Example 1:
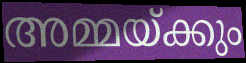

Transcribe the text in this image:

അമ്മയ്ക്കും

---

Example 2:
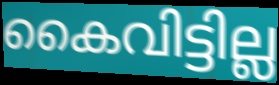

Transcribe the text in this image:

കൈവിട്ടില്ല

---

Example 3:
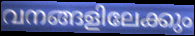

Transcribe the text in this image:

വനങ്ങളിലേക്കും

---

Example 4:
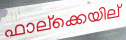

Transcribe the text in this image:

ഫാല്ക്കെയില്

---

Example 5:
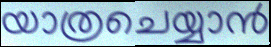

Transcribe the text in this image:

യാത്രചെയ്യാൻ